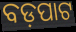
ବଡ଼ପାଟ